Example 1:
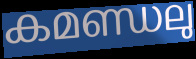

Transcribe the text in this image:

കമണ്ഡലു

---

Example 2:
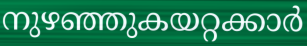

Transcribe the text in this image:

നുഴഞ്ഞുകയറ്റക്കാർ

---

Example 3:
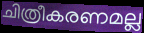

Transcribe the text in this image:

ചിത്രീകരണമല്ല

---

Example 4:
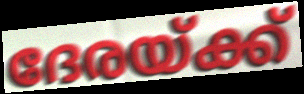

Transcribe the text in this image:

ദേരയ്ക്ക്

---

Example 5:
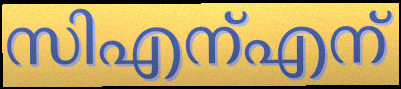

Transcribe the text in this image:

സിഎന്എന്